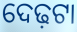
ଦେଢ଼ଟା